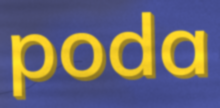
poda